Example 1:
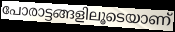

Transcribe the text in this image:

പോരാട്ടങ്ങളിലൂടെയാണ്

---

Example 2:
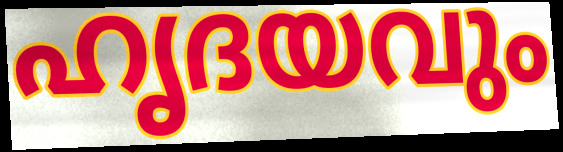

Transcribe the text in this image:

ഹൃദയവും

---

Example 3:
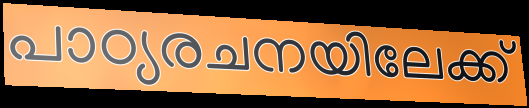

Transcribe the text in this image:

പാഠ്യരചനയിലേക്ക്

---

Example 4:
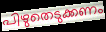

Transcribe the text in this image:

പിഴുതെടുക്കണം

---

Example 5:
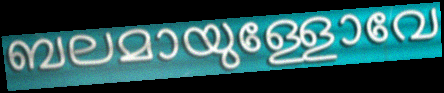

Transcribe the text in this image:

ബലമായുള്ളോവേ